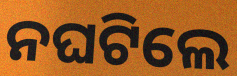
ନଘଟିଲେ